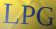
LPG